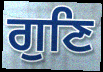
ਗੁਣਿ